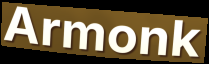
Armonk